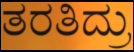
ತರತಿದ್ರು